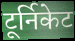
टूर्निकेट